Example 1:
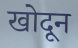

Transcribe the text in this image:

खोदून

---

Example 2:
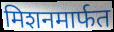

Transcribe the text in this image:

मिशनमार्फत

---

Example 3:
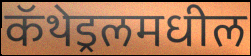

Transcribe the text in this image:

कॅथेड्रलमधील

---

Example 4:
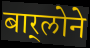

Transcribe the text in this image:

बार्लोने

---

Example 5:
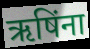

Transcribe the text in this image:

ऋषिंना